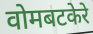
वोमबटकेरे